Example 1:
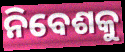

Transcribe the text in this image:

ନିବେଶକୁ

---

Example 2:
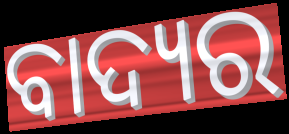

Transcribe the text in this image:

ବାଦ୍ୟର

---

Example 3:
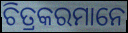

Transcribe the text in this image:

ଚିତ୍ରକରମାନେ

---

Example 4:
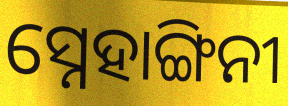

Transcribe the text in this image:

ସ୍ନେହାଙ୍ଗିନୀ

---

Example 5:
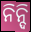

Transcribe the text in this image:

ନିନ୍ଦି